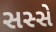
સસ્સે